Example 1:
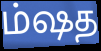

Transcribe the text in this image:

ம்ஷத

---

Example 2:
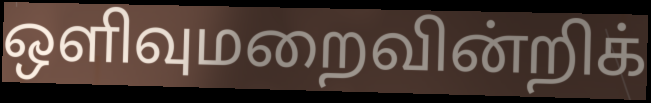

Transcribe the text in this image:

ஒளிவுமறைவின்றிக்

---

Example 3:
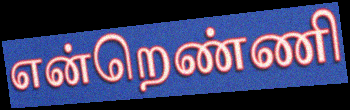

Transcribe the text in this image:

என்றெண்ணி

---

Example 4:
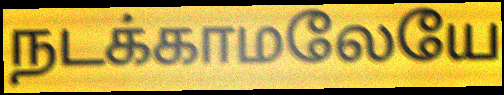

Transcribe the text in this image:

நடக்காமலேயே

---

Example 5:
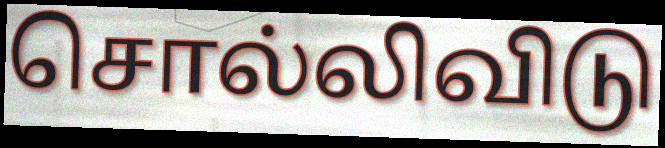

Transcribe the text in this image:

சொல்லிவிடு